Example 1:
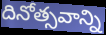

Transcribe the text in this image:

దినోత్సవాన్ని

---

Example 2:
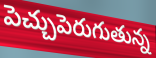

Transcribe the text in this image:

పెచ్చుపెరుగుతున్న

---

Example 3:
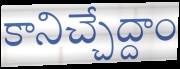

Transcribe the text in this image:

కానిచ్చేద్దాం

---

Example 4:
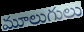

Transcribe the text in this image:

మూలుగులు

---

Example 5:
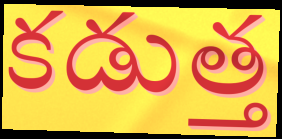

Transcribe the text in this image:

కడుత్త